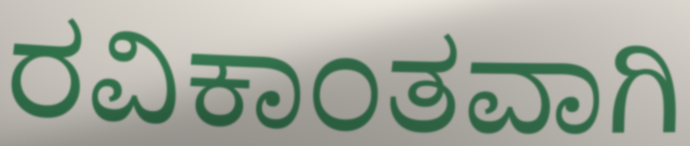
ರವಿಕಾಂತವಾಗಿ